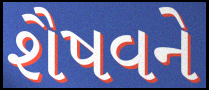
શૈષવને